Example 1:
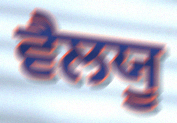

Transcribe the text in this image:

ਵੈਲਯੂ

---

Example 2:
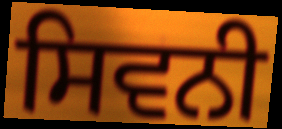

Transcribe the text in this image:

ਸਿਵਨੀ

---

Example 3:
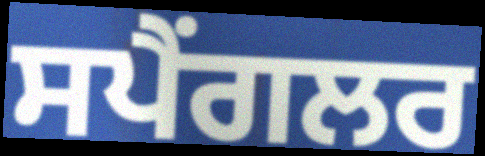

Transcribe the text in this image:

ਸਪੈਂਗਲਰ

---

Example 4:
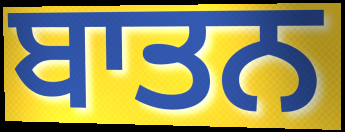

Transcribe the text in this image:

ਬਾਤਨ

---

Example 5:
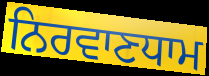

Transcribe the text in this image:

ਨਿਰਵਾਣਧਾਮ